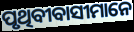
ପୃଥିବୀବାସୀମାନେ